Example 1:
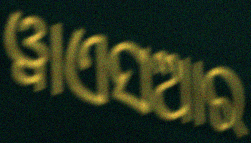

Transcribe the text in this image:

ୱାଏସଆର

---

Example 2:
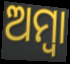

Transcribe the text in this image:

ଅମ୍ବା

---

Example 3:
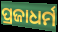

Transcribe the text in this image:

ପ୍ରଜାଧର୍ମ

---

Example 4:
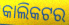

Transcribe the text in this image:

କାଲିକଟର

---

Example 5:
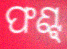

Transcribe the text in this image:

ଫଣ୍ଟ୍